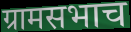
ग्रामसभाच